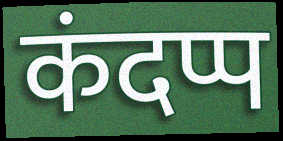
कंदप्प